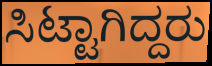
ಸಿಟ್ಟಾಗಿದ್ದರು